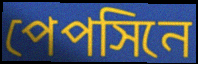
পেপসিনে